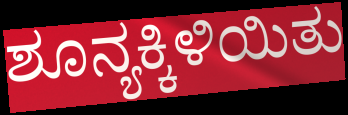
ಶೂನ್ಯಕ್ಕಿಳಿಯಿತು